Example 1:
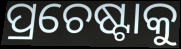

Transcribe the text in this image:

ପ୍ରଚେଷ୍ଟାକୁ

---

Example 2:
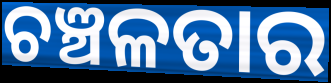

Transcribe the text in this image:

ଚଞ୍ଚଳତାର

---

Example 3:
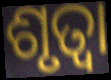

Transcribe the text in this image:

ଶୃତ୍ୱା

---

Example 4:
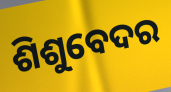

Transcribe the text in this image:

ଶିଶୁବେଦର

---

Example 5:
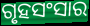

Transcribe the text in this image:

ଗୃହସଂସାର